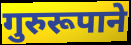
गुरुरूपाने